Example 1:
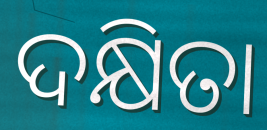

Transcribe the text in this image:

ଦକ୍ଷିତା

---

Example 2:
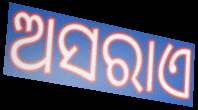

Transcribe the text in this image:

ଅସରାଏ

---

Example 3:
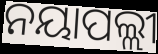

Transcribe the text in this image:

ନୟାପଲ୍ଲୀ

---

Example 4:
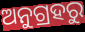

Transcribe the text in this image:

ଅନୁଗ୍ରହରୁ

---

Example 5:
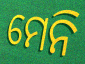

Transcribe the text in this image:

ମେନି